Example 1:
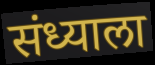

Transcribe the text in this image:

संध्याला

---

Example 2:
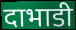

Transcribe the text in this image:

दाभाडी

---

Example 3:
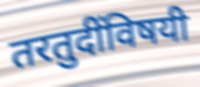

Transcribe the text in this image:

तरतुदींविषयी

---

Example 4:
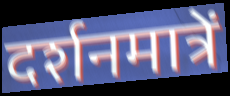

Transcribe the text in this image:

दर्शनमात्रें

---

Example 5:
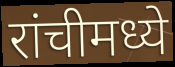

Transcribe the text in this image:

रांचीमध्ये